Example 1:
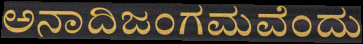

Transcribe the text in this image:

ಅನಾದಿಜಂಗಮವೆಂದು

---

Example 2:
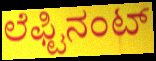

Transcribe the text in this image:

ಲೆಫ್ಟಿನಂಟ್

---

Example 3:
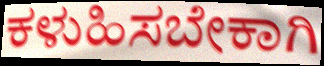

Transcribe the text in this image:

ಕಳುಹಿಸಬೇಕಾಗಿ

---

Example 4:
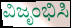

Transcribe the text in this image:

ವಿಜೃಂಭಿಸಿ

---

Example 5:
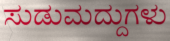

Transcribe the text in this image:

ಸುಡುಮದ್ದುಗಳು